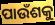
ପାଉଁଶକୁ